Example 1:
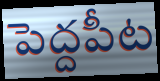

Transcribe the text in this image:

పెద్దపీట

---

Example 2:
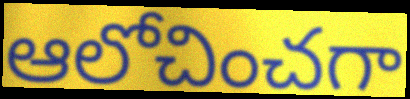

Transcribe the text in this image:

ఆలోచించగా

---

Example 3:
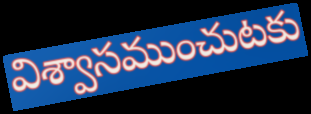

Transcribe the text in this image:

విశ్వాసముంచుటకు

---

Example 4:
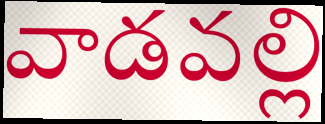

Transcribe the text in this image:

వాడవల్లి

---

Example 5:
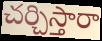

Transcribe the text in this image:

చర్చిస్తారా